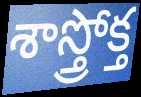
శాస్త్రోక్త